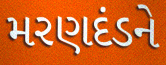
મરણદંડને